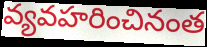
వ్యవహరించినంత